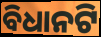
ବିଧାନଟି